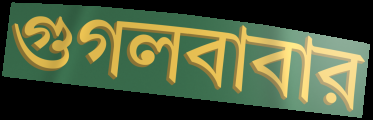
গুগলবাবার